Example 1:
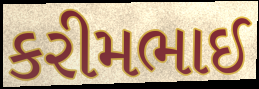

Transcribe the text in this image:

કરીમભાઈ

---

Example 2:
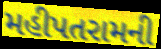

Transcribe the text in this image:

મહીપતરામની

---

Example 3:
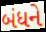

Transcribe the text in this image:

બંધને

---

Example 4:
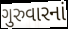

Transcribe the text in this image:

ગુરુવારનાં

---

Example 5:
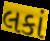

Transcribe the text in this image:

લકાં